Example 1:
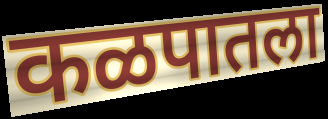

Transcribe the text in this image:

कळपातला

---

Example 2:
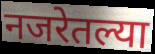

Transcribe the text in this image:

नजरेतल्या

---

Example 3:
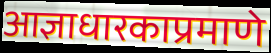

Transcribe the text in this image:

आज्ञाधारकाप्रमाणे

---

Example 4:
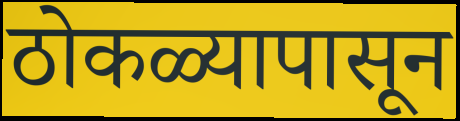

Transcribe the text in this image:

ठोकळ्यापासून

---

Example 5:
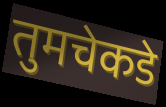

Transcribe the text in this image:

तुमचेकडे